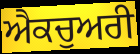
ਐਕਚੁਅਰੀ